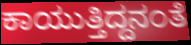
ಕಾಯುತ್ತಿದ್ದನಂತೆ